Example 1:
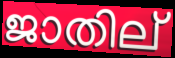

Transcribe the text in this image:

ജാതില്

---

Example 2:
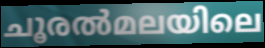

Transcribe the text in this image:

ചൂരൽമലയിലെ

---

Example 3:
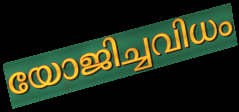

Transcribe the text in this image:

യോജിച്ചവിധം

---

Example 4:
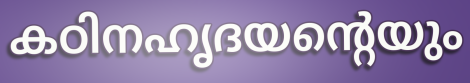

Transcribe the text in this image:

കഠിനഹൃദയന്റെയും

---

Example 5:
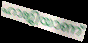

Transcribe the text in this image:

ഹാജിയാണ്